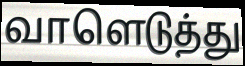
வாளெடுத்து